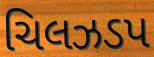
ચિલઝડપ